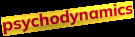
psychodynamics